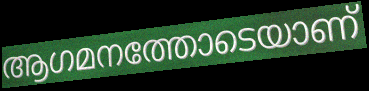
ആഗമനത്തോടെയാണ്